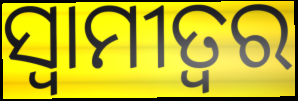
ସ୍ଵାମୀତ୍ୱର